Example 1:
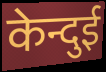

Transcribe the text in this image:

केन्दुई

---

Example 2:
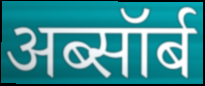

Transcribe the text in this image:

अब्सॉर्ब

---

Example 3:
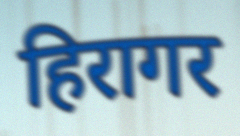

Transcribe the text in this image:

हिरागर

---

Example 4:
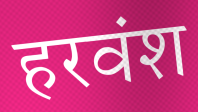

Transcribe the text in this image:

हरवंश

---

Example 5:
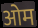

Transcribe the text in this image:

ओम